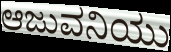
ಆಜುವನಿಯು